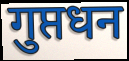
गुप्तधन